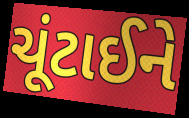
ચૂંટાઈને